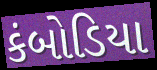
કંબોડિયા